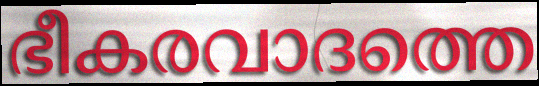
ഭീകരവാദത്തെ